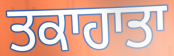
ਤਕਾਹਾਤਾ